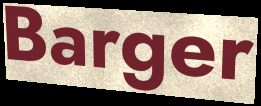
Barger